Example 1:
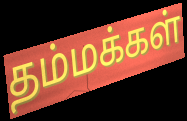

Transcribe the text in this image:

தம்மக்கள்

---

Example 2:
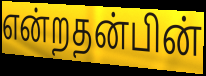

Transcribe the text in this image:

என்றதன்பின்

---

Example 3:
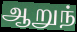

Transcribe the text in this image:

ஆறுந்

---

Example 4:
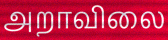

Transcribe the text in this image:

அறாவிலை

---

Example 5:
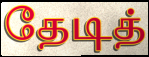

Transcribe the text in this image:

தேடித்